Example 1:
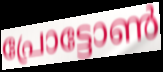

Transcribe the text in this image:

പ്രോട്ടോൺ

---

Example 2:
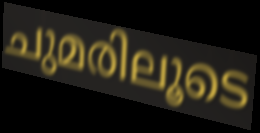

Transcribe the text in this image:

ചുമരിലൂടെ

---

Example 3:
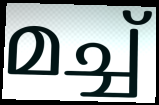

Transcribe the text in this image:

മച്ച്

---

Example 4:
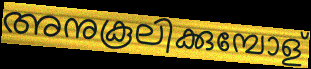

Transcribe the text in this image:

അനുകൂലിക്കുമ്പോള്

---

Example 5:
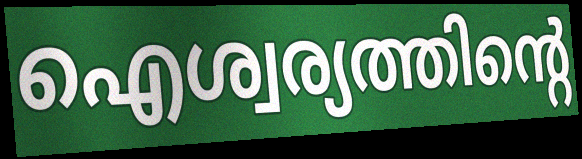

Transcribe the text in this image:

ഐശ്വര്യത്തിന്റെ